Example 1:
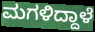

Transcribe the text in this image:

ಮಗಳಿದ್ದಾಳೆ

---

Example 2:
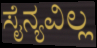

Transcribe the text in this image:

ಸೈನ್ಯವಿಲ್ಲ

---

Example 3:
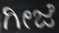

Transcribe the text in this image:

ಗೀಜೆ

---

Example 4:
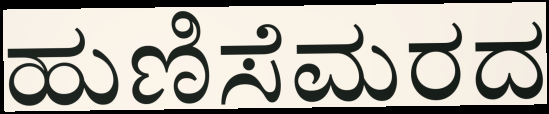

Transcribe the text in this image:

ಹುಣಿಸೆಮರದ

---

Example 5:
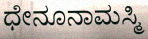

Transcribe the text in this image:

ಧೇನೂನಾಮಸ್ಮಿ